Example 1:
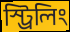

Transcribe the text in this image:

স্ট্রিলিং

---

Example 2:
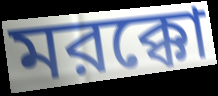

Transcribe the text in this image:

মরক্কো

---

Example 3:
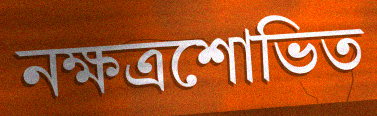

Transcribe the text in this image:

নক্ষত্রশোভিত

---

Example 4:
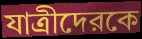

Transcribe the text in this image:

যাত্রীদেরকে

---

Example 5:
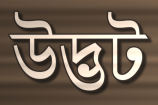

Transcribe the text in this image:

উদ্ভট